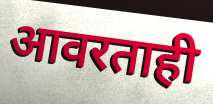
आवरताही